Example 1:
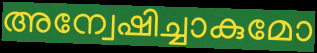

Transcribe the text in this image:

അന്വേഷിച്ചാകുമോ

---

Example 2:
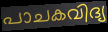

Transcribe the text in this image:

പാചകവിദ്യ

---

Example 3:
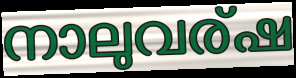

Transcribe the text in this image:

നാലുവര്ഷ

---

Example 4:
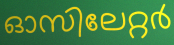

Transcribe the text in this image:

ഓസിലേറ്റർ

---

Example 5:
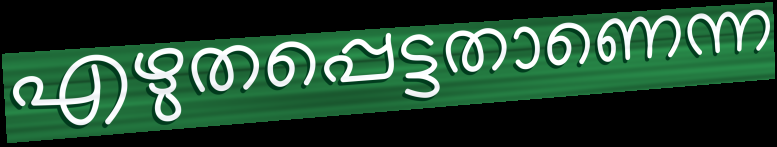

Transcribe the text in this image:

എഴുതപ്പെട്ടതാണെന്ന